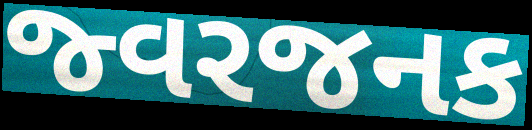
જ્વરજનક